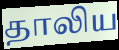
தாலிய